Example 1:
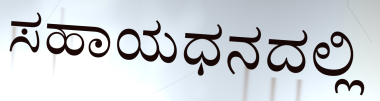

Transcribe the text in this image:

ಸಹಾಯಧನದಲ್ಲಿ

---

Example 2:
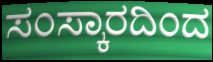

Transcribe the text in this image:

ಸಂಸ್ಕಾರದಿಂದ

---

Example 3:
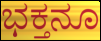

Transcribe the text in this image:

ಭಕ್ತನೂ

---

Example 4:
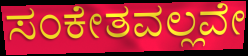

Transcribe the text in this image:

ಸಂಕೇತವಲ್ಲವೇ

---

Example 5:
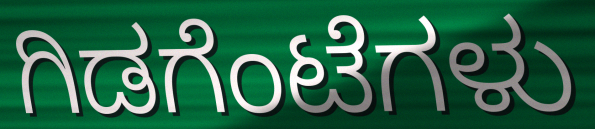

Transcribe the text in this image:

ಗಿಡಗೆಂಟೆಗಳು